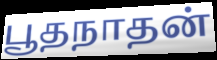
பூதநாதன்